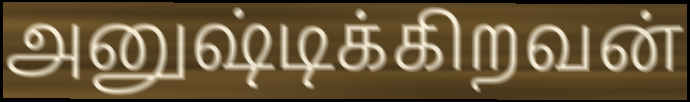
அனுஷ்டிக்கிறவன்